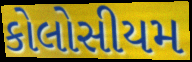
કોલોસીયમ